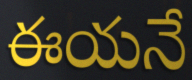
ఈయనే